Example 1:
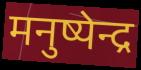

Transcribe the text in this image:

मनुष्येन्द्र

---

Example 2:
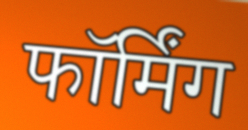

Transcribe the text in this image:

फॉर्मिंग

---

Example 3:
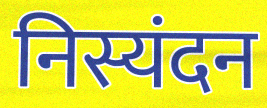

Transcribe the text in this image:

निस्यंदन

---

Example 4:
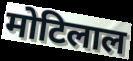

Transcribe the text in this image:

मोटिलाल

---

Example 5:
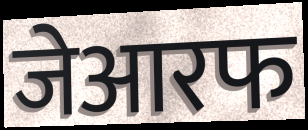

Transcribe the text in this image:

जेआरफ